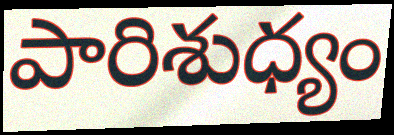
పారిశుధ్యం